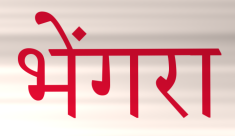
भेंगरा